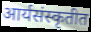
आर्यसंस्कृतीत